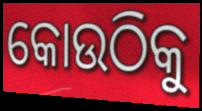
କୋଉଠିକୁ